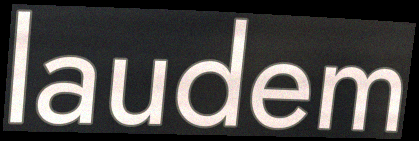
laudem